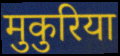
मुकुरिया